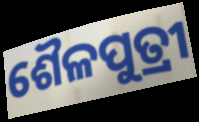
ଶୈଳପୁତ୍ରୀ